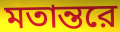
মতান্তরে